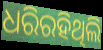
ଧରିରହିଥିଲି